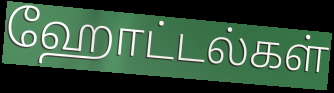
ஹோட்டல்கள்